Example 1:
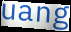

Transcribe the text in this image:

uang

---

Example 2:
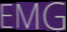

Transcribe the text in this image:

EMG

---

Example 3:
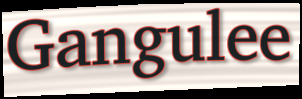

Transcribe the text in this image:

Gangulee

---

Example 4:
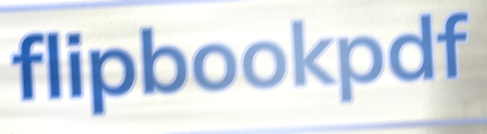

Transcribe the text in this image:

flipbookpdf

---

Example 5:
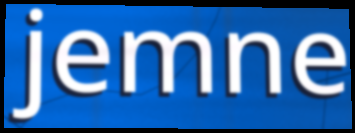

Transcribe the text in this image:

jemne